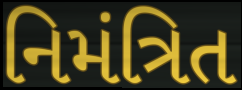
નિમંત્રિત